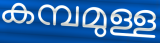
കമ്പമുള്ള